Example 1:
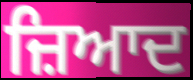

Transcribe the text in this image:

ਜ਼ਿਆਦ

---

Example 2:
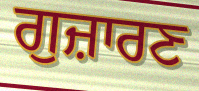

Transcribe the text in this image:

ਗੁਜ਼ਾਰਣ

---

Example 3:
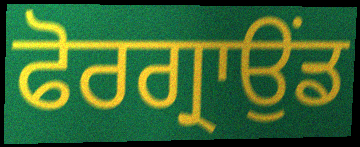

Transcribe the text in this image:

ਫੋਰਗ੍ਰਾਉਂਡ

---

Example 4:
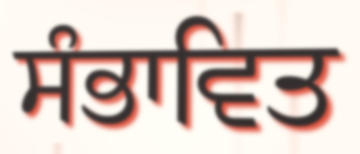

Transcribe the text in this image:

ਸੰਭਾਵਿਤ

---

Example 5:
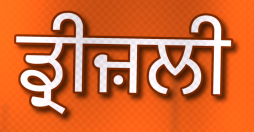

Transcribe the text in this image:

ਡ੍ਰੀਜ਼ਲੀ